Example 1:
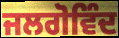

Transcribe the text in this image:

ਜਲਗੋਵਿੰਦ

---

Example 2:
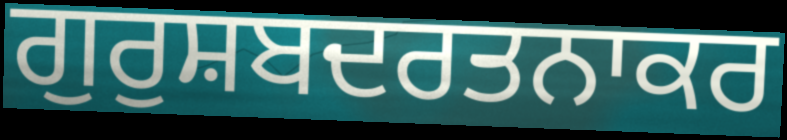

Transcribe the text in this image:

ਗੁਰੁਸ਼ਬਦਰਤਨਾਕਰ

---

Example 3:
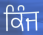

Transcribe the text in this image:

ਕਿੰਜ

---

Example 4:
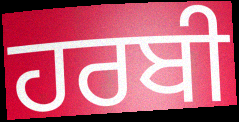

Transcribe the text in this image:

ਹਰਬੀ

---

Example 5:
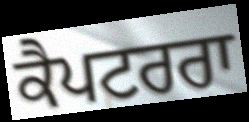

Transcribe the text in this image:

ਕੈਪਟਰਰਾ